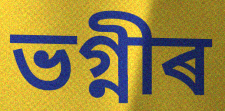
ভগ্নীৰ